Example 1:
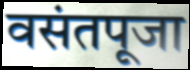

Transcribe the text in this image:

वसंतपूजा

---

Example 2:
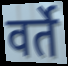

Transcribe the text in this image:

वर्ते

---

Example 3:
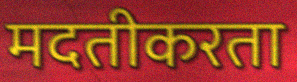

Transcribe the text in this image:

मदतीकरता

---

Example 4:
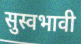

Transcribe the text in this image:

सुस्वभावी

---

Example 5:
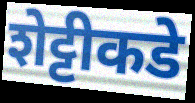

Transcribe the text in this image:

शेट्टीकडे